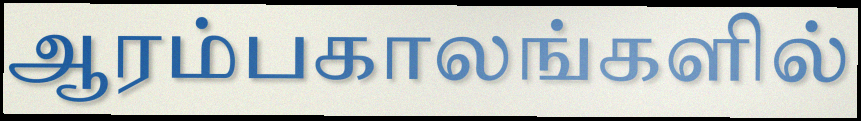
ஆரம்பகாலங்களில்